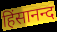
हिंसानन्द